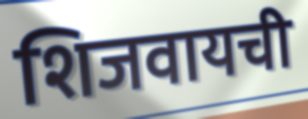
शिजवायची